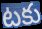
టకు